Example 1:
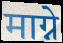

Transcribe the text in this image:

माग्ने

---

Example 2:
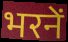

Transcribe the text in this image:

भरनें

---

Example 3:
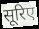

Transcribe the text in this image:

सूरिए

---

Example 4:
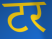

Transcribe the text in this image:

टर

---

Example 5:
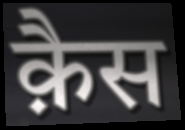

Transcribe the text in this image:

क़ैस